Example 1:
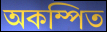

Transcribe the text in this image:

অকম্পিত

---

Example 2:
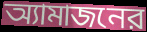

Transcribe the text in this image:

অ্যামাজনের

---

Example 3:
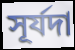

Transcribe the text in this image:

সূর্যদা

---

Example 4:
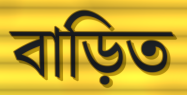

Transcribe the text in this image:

বাড়িত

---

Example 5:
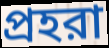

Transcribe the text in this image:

প্রহরা